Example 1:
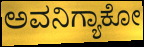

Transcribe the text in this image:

ಅವನಿಗ್ಯಾಕೋ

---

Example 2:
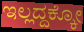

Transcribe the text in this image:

ಇಲ್ಲದ್ದಕ್ಕೋ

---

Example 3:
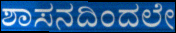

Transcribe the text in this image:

ಶಾಸನದಿಂದಲೇ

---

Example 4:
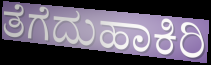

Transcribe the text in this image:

ತೆಗೆದುಹಾಕಿರಿ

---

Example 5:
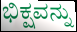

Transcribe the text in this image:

ಭಿಕ್ಷವನ್ನು